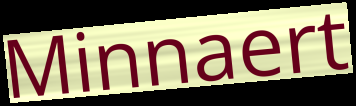
Minnaert